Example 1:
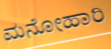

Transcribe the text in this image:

ಮನೋಹಾರಿ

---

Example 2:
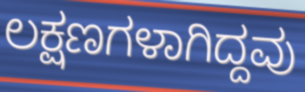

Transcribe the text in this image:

ಲಕ್ಷಣಗಳಾಗಿದ್ದವು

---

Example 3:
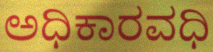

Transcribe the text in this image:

ಅಧಿಕಾರವಧಿ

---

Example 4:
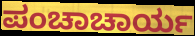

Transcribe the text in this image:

ಪಂಚಾಚಾರ್ಯ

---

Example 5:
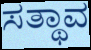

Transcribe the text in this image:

ಸತ್ಥಾವ